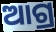
ଆଗ୍ର